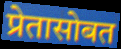
प्रेतासोबत